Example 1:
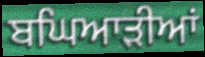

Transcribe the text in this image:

ਬਘਿਆੜੀਆਂ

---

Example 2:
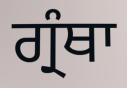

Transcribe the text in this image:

ਗ੍ਰੰਥਾ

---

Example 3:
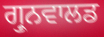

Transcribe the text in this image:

ਗ੍ਰੁਨਵਾਲਡ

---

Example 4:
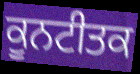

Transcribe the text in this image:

ਕੂਨਟੀਤਕ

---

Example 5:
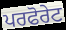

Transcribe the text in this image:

ਪਰਫੋਰੇਟ